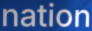
nation